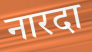
नारदा